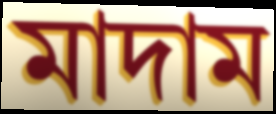
মাদাম